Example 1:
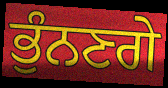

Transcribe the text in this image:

ਭੁੰਨਣਗੇ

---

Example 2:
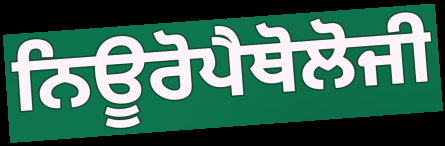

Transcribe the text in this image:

ਨਿਊਰੋਪੈਥੋਲੋਜੀ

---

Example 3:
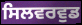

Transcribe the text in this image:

ਸਿਲਵਰਵੁਡ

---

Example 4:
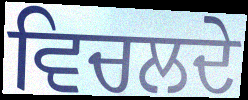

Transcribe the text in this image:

ਵਿਚਲਦੇ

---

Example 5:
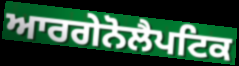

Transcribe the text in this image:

ਆਰਗੇਨੋਲੈਪਟਿਕ